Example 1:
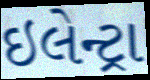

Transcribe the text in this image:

ઇલેન્ટ્રા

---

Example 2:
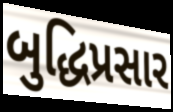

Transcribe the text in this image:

બુદ્ધિપ્રસાર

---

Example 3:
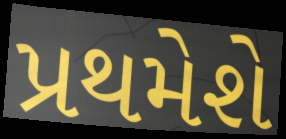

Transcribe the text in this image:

પ્રથમેશે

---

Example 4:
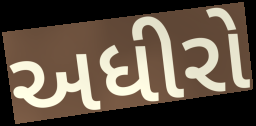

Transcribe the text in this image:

અધીરો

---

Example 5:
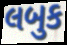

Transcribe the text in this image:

લબુક